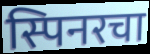
स्पिनरचा